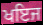
ਖਇਜ